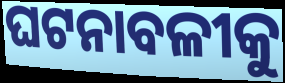
ଘଟନାବଳୀକୁ